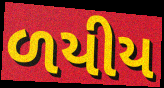
ળયીય